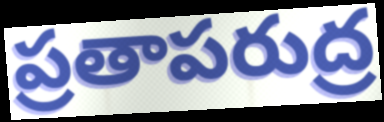
ప్రతాపరుద్ర